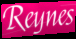
Reynes